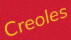
Creoles